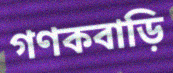
গণকবাড়ি